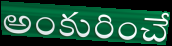
అంకురించే